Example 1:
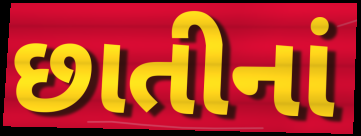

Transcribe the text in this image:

છાતીનાં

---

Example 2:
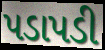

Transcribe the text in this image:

પડાપડી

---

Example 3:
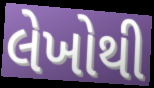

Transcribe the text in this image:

લેખોથી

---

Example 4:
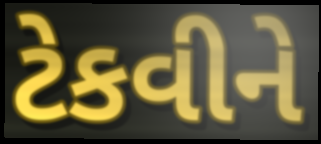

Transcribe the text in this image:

ટેકવીને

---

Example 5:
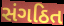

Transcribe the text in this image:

સંગઠિત